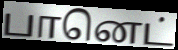
பானெட்